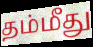
தம்மீது